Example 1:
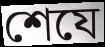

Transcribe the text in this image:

শেযে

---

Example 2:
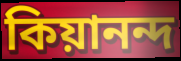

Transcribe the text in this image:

কিয়ানন্দ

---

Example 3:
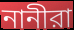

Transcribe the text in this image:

নানীরা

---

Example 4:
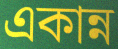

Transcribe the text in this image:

একান্ন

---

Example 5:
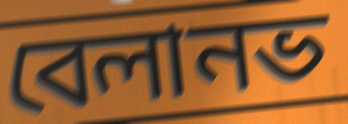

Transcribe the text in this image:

বেলানভ